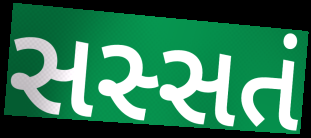
સસ્સતં